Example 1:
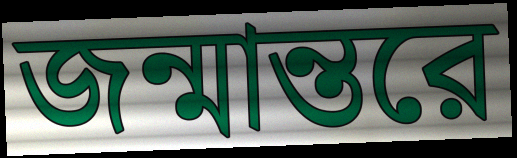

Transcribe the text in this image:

জন্মান্তরে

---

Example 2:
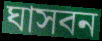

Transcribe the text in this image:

ঘাসবন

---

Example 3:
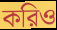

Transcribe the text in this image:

করিও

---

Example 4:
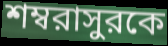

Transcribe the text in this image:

শম্বরাসুরকে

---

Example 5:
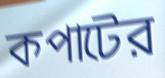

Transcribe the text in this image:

কপাটের